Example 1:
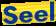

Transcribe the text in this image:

Seel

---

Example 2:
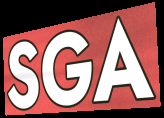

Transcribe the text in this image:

SGA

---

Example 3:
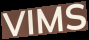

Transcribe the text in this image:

VIMS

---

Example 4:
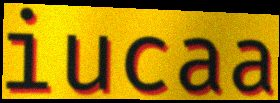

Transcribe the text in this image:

iucaa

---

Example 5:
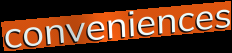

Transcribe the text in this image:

conveniences